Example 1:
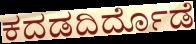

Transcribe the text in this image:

ಕದಡದಿರ್ದೊಡೆ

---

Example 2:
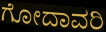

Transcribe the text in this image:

ಗೋದಾವರಿ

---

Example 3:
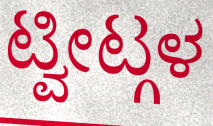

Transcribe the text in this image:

ಟ್ವೀಟ್ಗಳ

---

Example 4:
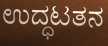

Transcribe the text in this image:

ಉದ್ಧಟತನ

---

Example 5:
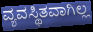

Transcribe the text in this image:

ವ್ಯವಸ್ಥಿತವಾಗಿಲ್ಲ